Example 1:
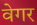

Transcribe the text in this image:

वेगर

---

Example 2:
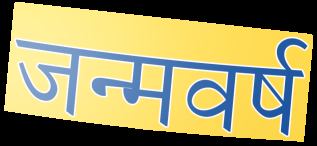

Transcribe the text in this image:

जन्मवर्ष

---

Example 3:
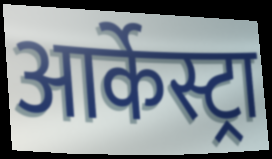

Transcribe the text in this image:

आर्केस्ट्रा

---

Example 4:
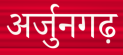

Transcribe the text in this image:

अर्जुनगढ़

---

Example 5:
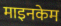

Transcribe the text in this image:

माइनकेम